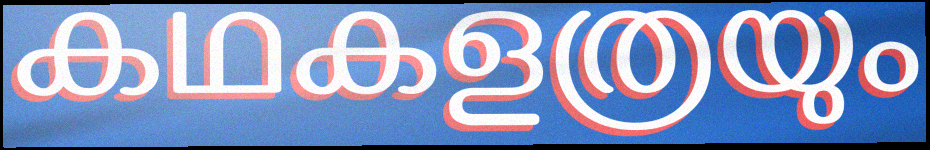
കഥകളത്രയും